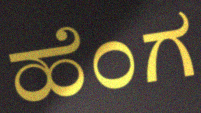
ಹೆಂಗ